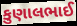
કુણાલભાઈ